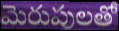
మెరుపులతో